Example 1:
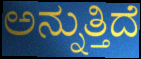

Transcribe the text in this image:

ಅನ್ನುತ್ತಿದೆ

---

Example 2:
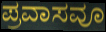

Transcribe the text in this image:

ಪ್ರವಾಸವೂ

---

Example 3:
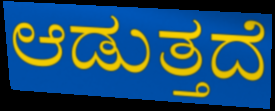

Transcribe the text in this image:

ಆಡುತ್ತದೆ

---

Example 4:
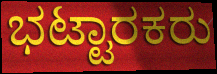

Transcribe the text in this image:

ಭಟ್ಟಾರಕರು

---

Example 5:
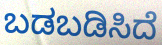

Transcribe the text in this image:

ಬಡಬಡಿಸಿದೆ